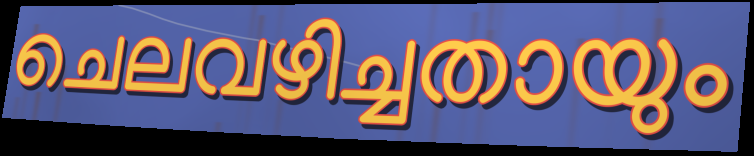
ചെലവഴിച്ചതായും